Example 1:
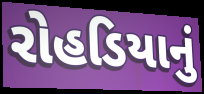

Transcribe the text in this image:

રોહડિયાનું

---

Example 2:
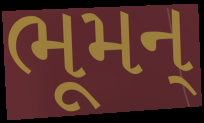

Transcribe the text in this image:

ભૂમન્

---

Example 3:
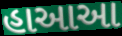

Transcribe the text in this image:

હાઆઆ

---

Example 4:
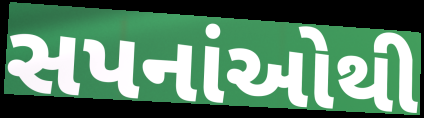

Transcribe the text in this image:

સપનાંઓથી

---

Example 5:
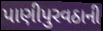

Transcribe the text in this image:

પાણીપુરવઠાની